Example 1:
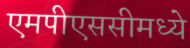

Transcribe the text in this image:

एमपीएससीमध्ये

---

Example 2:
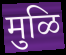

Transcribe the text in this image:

मुळि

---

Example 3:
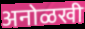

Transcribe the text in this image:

अनोळखी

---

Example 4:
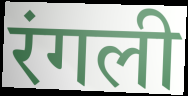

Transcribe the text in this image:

रंगली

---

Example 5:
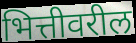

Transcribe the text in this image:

भित्तीवरील